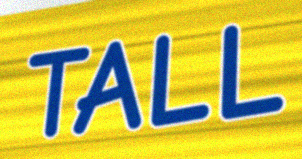
TALL